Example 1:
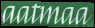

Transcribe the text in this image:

aatmaa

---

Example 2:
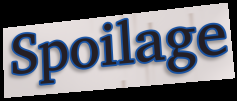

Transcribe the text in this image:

Spoilage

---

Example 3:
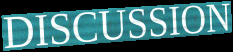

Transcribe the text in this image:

DISCUSSION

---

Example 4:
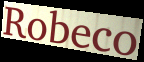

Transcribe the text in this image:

Robeco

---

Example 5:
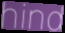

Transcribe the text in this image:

hind